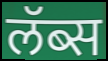
लॅब्स